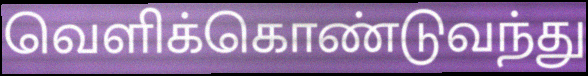
வெளிக்கொண்டுவந்து